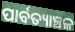
ପାର୍ବତ୍ୟାଞ୍ଚଳ